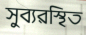
সুব্যৱস্থিত